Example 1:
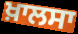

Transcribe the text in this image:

ਖ਼ਾਲਸਾ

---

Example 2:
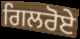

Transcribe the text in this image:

ਗਿਲਰੋਏ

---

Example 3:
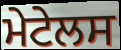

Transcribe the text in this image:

ਮੇਟੇਲਸ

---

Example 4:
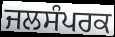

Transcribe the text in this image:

ਜਲਸੰਪਰਕ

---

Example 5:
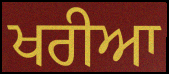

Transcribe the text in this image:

ਖਰੀਆ